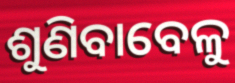
ଶୁଣିବାବେଳୁ